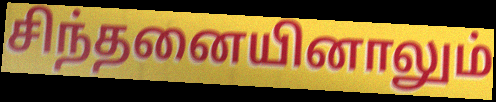
சிந்தனையினாலும்